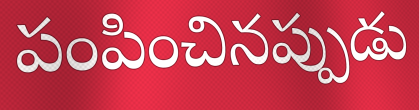
పంపించినప్పుడు